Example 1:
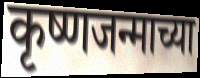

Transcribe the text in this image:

कृष्णजन्माच्या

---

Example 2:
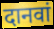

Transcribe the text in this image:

दानवां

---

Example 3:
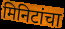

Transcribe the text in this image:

मिनिटांचा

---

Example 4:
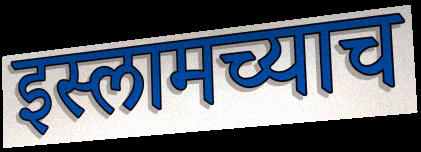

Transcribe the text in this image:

इस्लामच्याच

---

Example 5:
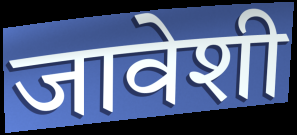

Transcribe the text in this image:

जावेशी